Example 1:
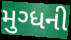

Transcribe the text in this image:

મુગ્ધની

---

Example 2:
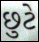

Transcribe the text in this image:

છુટે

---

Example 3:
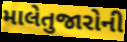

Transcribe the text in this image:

માલેતુજારોની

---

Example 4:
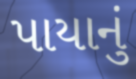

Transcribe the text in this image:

પાયાનું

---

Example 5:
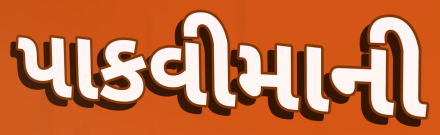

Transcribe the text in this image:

પાકવીમાની